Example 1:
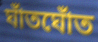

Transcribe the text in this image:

ঘাঁতঘোঁত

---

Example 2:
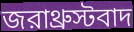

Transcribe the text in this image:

জরাথ্রুস্টবাদ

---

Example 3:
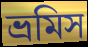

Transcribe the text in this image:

ভ্রমিস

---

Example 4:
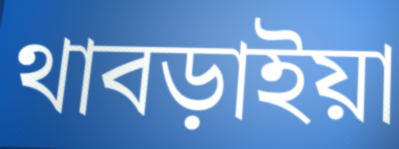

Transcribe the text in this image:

থাবড়াইয়া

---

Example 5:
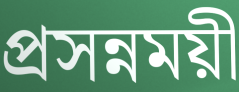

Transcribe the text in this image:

প্রসন্নময়ী